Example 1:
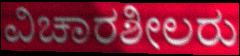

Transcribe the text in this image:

ವಿಚಾರಶೀಲರು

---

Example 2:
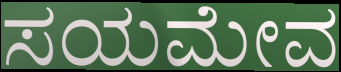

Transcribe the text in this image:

ಸಯಮೇವ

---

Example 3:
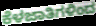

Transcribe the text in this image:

ಕೆಳಜಾತಿಗಳಿಂದ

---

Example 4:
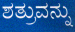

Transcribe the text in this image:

ಶತ್ರುವನ್ನು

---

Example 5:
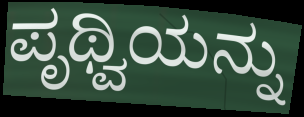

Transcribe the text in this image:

ಪೃಥ್ವಿಯನ್ನು